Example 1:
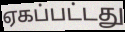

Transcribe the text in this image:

ஏகப்பட்டது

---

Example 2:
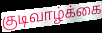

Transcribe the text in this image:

குடிவாழ்க்கை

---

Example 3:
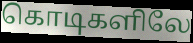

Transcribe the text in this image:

கொடிகளிலே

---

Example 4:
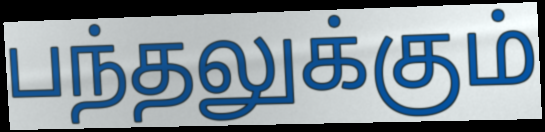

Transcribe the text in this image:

பந்தலுக்கும்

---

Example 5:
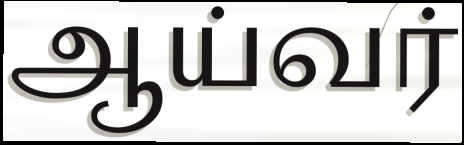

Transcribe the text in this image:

ஆய்வர்